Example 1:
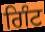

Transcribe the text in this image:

ਗਿੰਟ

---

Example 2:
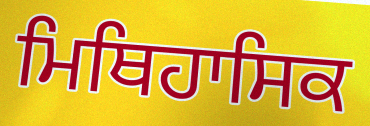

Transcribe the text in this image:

ਮਿਥਿਹਾਸਿਕ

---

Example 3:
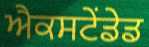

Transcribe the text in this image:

ਐਕਸਟੇਂਡੇਡ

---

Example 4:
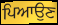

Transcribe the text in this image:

ਪਿਆਉਣ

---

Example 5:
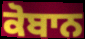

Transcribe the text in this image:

ਕੋਬਾਨ